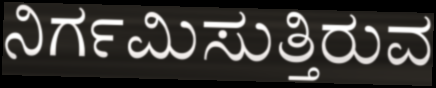
ನಿರ್ಗಮಿಸುತ್ತಿರುವ